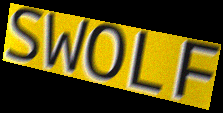
SWOLF